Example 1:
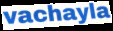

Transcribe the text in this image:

vachayla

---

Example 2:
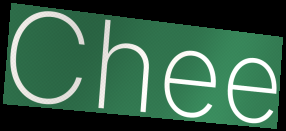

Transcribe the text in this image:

Chee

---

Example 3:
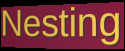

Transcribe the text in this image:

Nesting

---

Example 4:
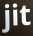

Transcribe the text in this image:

jit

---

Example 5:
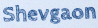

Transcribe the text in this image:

Shevgaon